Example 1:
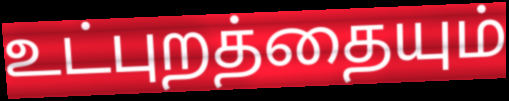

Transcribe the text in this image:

உட்புறத்தையும்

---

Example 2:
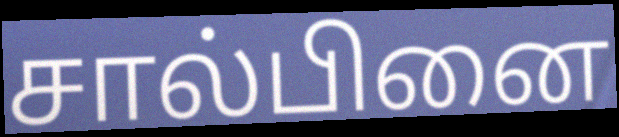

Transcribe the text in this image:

சால்பினை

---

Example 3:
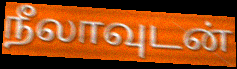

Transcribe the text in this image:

நீலாவுடன்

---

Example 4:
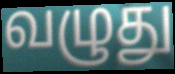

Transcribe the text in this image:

வழுது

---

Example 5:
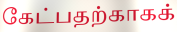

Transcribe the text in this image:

கேட்பதற்காகக்